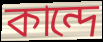
কান্দে